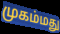
முகம்மது